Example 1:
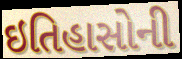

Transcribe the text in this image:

ઇતિહાસોની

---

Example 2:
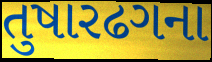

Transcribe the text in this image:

તુષારઢગના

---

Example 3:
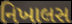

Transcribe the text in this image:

નિખાલસ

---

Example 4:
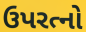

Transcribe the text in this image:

ઉપરત્નો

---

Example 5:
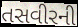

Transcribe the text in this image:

તસવીરની